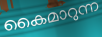
കൈമാറുന്ന